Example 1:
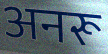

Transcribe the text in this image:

अनरू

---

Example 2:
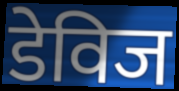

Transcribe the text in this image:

डेविज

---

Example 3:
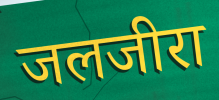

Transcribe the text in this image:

जलजीरा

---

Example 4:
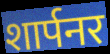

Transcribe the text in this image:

शार्पनर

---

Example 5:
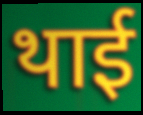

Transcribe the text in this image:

थाई